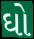
ઘો